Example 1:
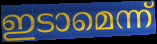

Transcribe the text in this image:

ഇടാമെന്ന്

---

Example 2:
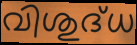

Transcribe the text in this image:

വിശുദ്‌ധ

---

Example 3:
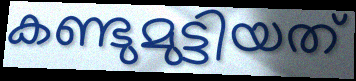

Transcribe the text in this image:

കണ്ടുമുട്ടിയത്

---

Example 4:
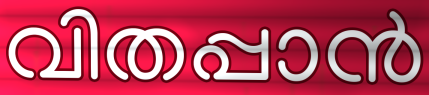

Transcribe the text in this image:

വിതപ്പാൻ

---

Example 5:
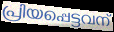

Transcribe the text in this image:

പ്രിയപ്പെട്ടവന്